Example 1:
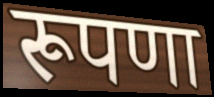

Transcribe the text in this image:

रूपणा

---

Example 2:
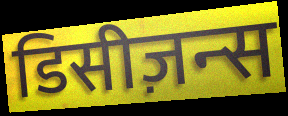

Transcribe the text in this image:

डिसीज़न्स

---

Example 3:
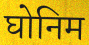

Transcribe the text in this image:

घोनिम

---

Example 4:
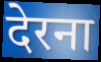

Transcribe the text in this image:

देरना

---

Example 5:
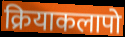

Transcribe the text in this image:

क्रियाकलापो